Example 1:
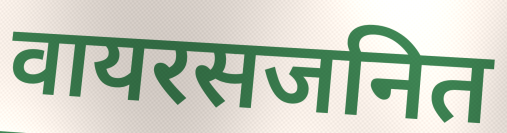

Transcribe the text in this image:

वायरसजनित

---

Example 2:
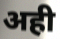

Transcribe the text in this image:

अही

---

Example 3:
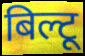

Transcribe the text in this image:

बिल्टू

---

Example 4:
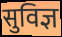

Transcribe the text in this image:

सुविज्ञ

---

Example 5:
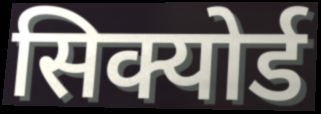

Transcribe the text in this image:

सिक्योर्ड